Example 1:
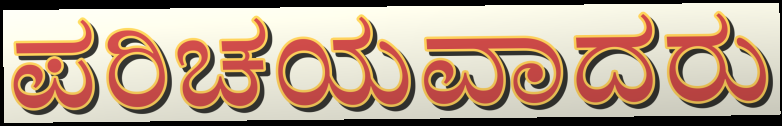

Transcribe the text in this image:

ಪರಿಚಯವಾದರು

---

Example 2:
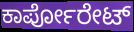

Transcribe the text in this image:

ಕಾರ್ಪೋರೇಟ್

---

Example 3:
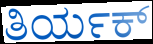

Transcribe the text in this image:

ತಿರ್ಯಕ್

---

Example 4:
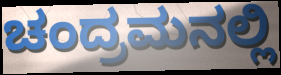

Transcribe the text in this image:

ಚಂದ್ರಮನಲ್ಲಿ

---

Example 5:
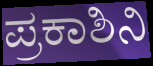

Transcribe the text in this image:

ಪ್ರಕಾಶಿನಿ